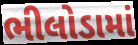
ભીલોડામાં